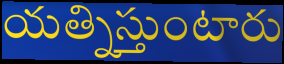
యత్నిస్తుంటారు